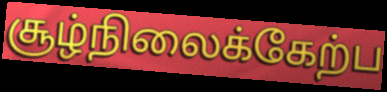
சூழ்நிலைக்கேற்ப